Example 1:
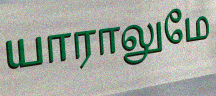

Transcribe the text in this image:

யாராலுமே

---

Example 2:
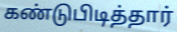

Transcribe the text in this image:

கண்டுபிடித்தார்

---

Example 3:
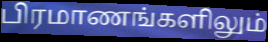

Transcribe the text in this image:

பிரமாணங்களிலும்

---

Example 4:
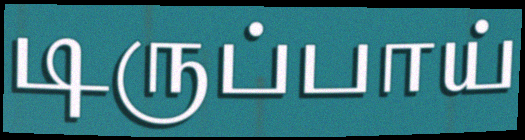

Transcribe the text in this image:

டிருப்பாய்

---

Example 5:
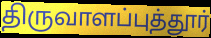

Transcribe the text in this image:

திருவாளப்புத்தூர்